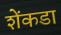
शेंकडा